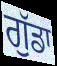
ਗੁੱਡਾ